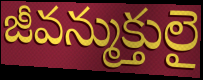
జీవన్ముక్తులై